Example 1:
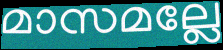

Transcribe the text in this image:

മാസമല്ലേ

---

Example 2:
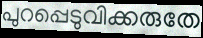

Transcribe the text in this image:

പുറപ്പെടുവിക്കരുതേ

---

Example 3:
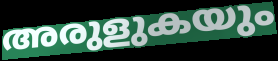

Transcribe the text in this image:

അരുളുകയും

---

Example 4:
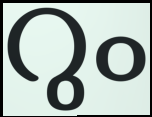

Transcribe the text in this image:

റും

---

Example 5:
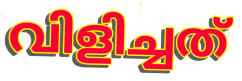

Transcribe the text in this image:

വിളിച്ചത്